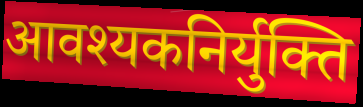
आवश्यकनिर्युक्ति